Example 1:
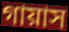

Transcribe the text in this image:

গায়াস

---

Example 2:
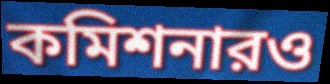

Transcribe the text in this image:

কমিশনারও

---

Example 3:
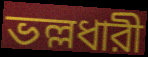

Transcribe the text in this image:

ভল্লধারী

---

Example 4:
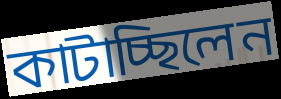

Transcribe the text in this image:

কাটাচ্ছিলেন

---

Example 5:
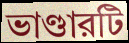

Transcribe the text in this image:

ভাণ্ডারটি